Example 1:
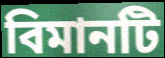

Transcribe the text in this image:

বিমানটি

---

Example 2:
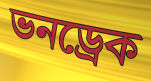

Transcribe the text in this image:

ভনড্রেক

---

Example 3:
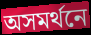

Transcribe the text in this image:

অসমর্থনে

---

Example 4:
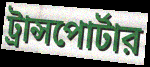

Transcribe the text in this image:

ট্রান্সপোর্টার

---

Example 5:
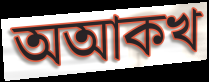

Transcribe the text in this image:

অআকখ